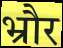
भ्रौर